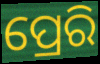
ପ୍ରେରି